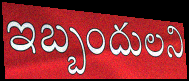
ఇబ్బందులని